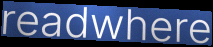
readwhere